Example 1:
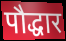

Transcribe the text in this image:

पौद्धार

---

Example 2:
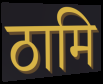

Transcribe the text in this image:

ठामि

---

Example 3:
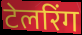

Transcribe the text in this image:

टेलरिंग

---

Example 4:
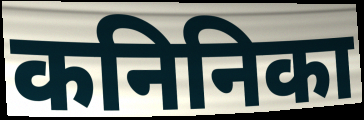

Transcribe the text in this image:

कनिनिका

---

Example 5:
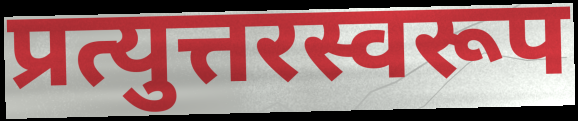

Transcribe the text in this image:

प्रत्युत्तरस्वरूप